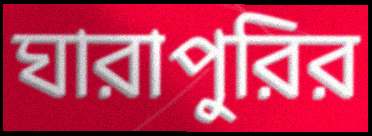
ঘারাপুরির